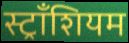
स्ट्राँशियम